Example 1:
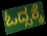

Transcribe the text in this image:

ಓದ್ಸಕ್ಕೆ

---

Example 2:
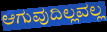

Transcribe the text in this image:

ಆಗುವುದಿಲ್ಲವಲ್ಲ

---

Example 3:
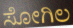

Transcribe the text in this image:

ಸೋಗಿಲ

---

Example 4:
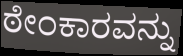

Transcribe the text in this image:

ಠೇಂಕಾರವನ್ನು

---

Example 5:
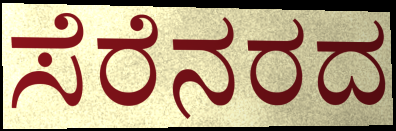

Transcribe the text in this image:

ಸೆರೆನರದ